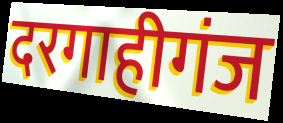
दरगाहीगंज